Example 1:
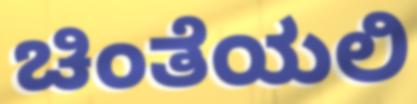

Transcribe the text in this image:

ಚಿಂತೆಯಲಿ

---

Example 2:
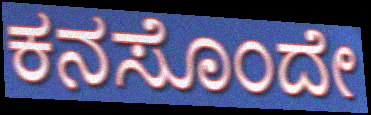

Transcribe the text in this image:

ಕನಸೊಂದೇ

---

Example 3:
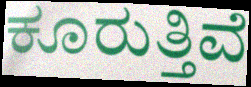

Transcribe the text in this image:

ಕೂರುತ್ತಿವೆ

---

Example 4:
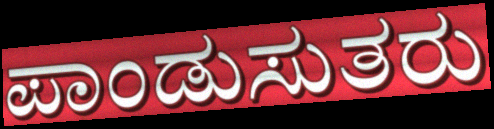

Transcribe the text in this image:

ಪಾಂಡುಸುತರು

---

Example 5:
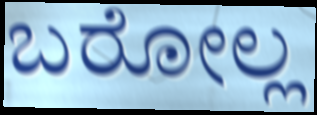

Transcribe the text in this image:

ಬರೋಲ್ಲ